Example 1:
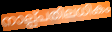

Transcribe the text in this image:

നാല്പ്പതിലധികം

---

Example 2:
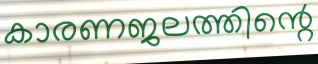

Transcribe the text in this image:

കാരണജലത്തിന്റെ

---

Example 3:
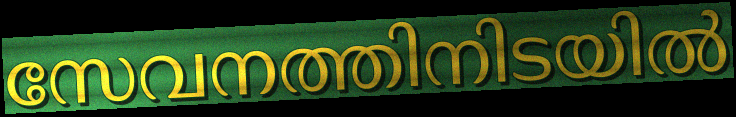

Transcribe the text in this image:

സേവനത്തിനിടയിൽ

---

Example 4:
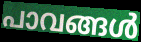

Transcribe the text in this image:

പാവങ്ങൾ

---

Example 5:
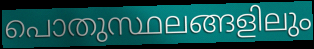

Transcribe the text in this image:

പൊതുസ്ഥലങ്ങളിലും